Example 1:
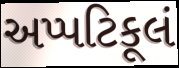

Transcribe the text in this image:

અપ્પટિકૂલં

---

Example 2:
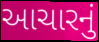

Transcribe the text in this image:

આચારનું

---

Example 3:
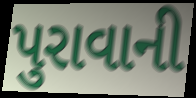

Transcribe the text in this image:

પુરાવાની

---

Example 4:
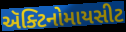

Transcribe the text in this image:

ઍક્ટિનોમાયસીટ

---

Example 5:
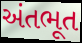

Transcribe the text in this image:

અંતભૂત